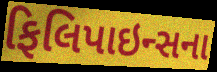
ફિલિપાઇન્સના